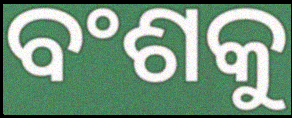
ବଂଶକୁ